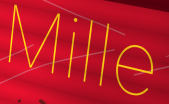
Mille